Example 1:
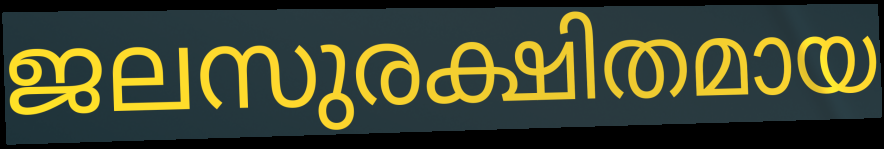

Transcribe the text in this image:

ജലസുരക്ഷിതമായ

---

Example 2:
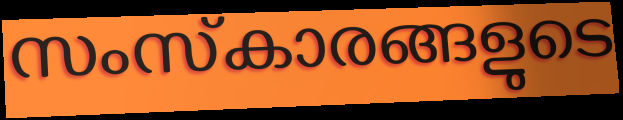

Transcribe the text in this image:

സംസ്‌കാരങ്ങളുടെ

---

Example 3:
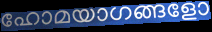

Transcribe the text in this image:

ഹോമയാഗങ്ങളോ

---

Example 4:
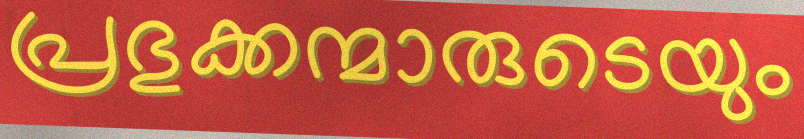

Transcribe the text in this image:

പ്രഭുക്കന്മാരുടെയും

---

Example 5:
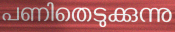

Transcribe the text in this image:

പണിതെടുക്കുന്നു